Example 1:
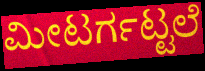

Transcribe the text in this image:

ಮೀಟರ್ಗಟ್ಟಲೆ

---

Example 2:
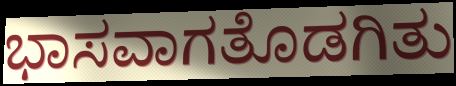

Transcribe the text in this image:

ಭಾಸವಾಗತೊಡಗಿತು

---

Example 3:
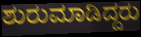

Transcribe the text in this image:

ಶುರುಮಾಡಿದ್ದರು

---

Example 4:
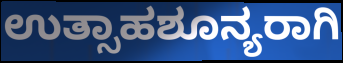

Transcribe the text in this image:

ಉತ್ಸಾಹಶೂನ್ಯರಾಗಿ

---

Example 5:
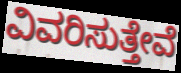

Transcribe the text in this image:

ವಿವರಿಸುತ್ತೇವೆ